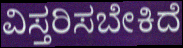
ವಿಸ್ತರಿಸಬೇಕಿದೆ